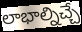
లాభాల్నిచ్చే